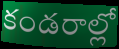
కండరాల్లో